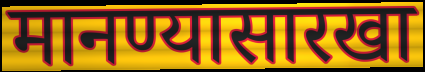
मानण्यासारखा